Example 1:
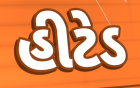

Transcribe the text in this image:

હીટેડ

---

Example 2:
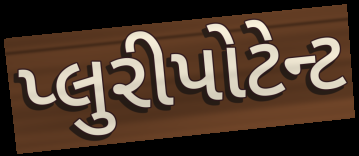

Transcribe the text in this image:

પ્લુરીપોટેન્ટ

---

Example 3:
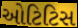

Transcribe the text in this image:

ઓટિટિસ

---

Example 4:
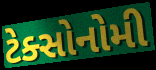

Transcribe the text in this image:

ટેક્સોનોમી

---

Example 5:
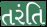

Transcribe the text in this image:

તરંતિ